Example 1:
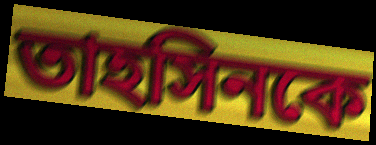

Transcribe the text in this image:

তাহসিনকে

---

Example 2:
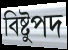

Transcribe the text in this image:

বিষ্টুপদ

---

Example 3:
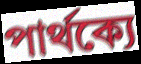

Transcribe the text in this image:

পার্থক্যে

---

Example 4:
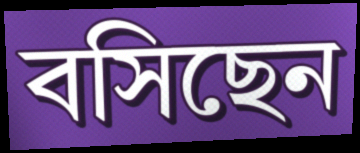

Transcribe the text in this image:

বসিছেন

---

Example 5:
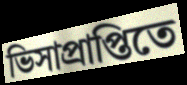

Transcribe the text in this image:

ভিসাপ্রাপ্তিতে